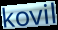
kovil